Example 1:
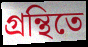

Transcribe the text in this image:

গ্রন্থিতে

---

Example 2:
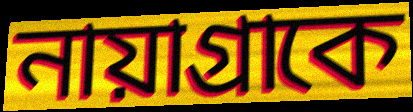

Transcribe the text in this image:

নায়াগ্রাকে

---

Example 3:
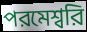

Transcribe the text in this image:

পরমেশ্বরি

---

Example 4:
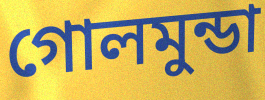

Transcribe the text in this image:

গোলমুন্ডা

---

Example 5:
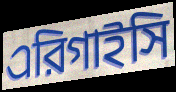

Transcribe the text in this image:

এরিগাইসি